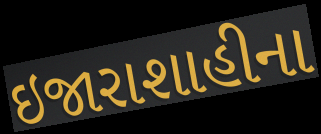
ઇજારાશાહીના